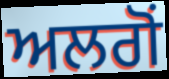
ਅਲਗੋਂ